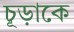
চূড়াকে